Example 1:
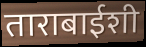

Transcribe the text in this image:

ताराबाईशी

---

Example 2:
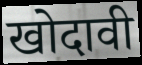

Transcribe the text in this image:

खोदावी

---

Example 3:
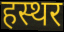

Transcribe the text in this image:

हस्थर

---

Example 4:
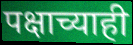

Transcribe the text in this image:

पक्षाच्याही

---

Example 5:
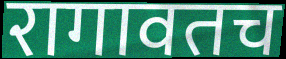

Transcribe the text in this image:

रागावतच